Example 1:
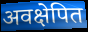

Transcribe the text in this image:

अवक्षेपित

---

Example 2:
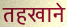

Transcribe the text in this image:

तहखाने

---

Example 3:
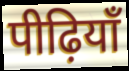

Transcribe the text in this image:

पीढ़ियाँ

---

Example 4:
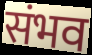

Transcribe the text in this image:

संभव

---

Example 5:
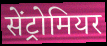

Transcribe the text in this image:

सेंट्रोमियर